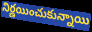
నిర్ణయించుకున్నాయి